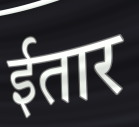
ईतार